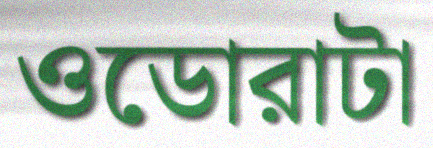
ওডোরাটা